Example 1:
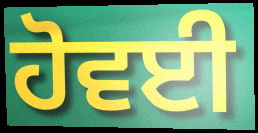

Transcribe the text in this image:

ਹੋਵਈ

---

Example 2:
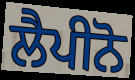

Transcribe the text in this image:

ਲੈਪੀਨੋ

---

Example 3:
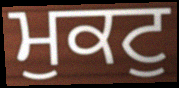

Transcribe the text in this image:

ਮੁਕਟੁ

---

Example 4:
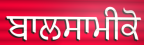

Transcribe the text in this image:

ਬਾਲਸਾਮੀਕੋ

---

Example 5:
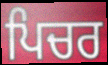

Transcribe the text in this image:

ਪਿਚਰ